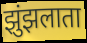
झुंझलाता